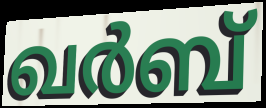
ഖർബ്